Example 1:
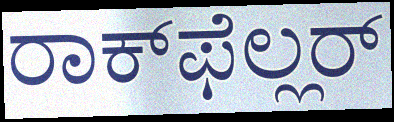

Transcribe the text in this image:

ರಾಕ್‌ಫೆಲ್ಲರ್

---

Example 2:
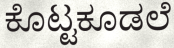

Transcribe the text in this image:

ಕೊಟ್ಟಕೂಡಲೆ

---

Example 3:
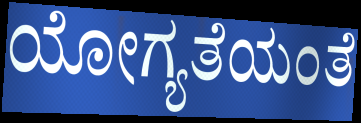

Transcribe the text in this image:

ಯೋಗ್ಯತೆಯಂತೆ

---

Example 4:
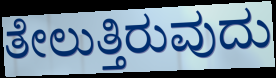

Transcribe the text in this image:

ತೇಲುತ್ತಿರುವುದು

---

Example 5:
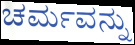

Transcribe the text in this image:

ಚರ್ಮವನ್ನು